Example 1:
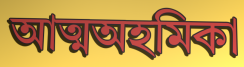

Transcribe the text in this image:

আত্মঅহমিকা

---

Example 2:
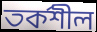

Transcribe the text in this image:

তর্কশীল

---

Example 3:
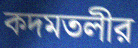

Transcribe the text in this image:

কদমতলীর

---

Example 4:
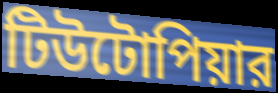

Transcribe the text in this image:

টিউটোপিয়ার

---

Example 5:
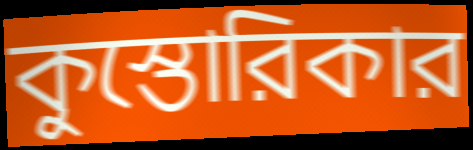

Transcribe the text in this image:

কুস্তোরিকার